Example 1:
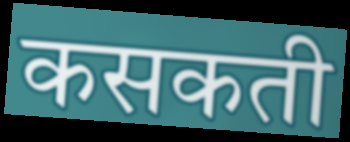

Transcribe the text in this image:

कसकती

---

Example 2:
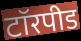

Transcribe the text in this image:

टॉरपीड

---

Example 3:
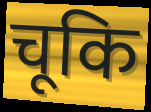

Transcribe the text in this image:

चूकि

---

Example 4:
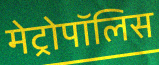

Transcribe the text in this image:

मेट्रोपॉलिस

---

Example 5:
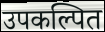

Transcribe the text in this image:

उपकल्पित